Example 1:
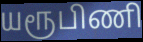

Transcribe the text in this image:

யரூபிணி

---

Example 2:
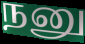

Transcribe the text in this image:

நனு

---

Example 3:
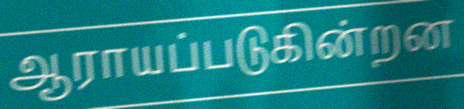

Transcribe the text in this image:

ஆராயப்படுகின்றன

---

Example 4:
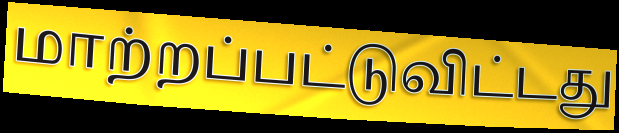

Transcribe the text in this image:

மாற்றப்பட்டுவிட்டது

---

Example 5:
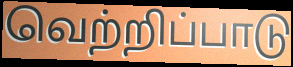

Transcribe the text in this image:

வெற்றிப்பாடு